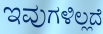
ಇವುಗಳಿಲ್ಲದೆ